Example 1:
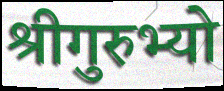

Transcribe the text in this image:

श्रीगुरुभ्यो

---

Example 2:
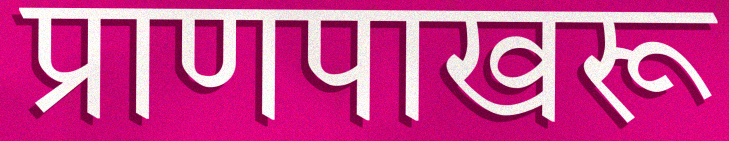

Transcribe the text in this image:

प्राणपाखरू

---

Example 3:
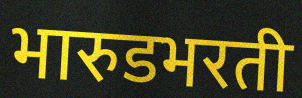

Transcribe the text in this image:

भारुडभरती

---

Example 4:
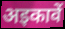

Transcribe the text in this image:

अइकावें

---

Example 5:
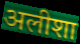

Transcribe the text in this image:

अलीशा